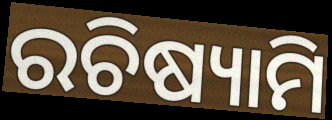
ରଚିଷ୍ୟାମି